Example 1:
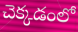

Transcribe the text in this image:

చెక్కడంలో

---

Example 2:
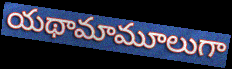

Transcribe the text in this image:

యథామామూలుగా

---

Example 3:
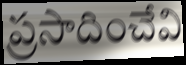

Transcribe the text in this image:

ప్రసాదించేవి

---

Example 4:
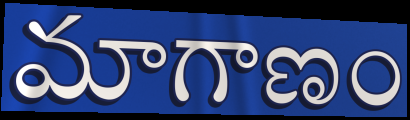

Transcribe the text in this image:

మాగాణం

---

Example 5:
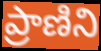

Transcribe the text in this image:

ప్రాణిని